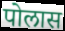
पोलास